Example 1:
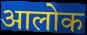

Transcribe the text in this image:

आलोक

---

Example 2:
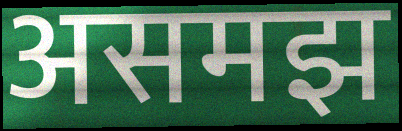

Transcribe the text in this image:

असमझ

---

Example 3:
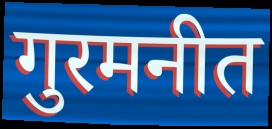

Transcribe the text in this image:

गुरमनीत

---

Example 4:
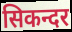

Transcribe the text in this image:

सिकन्दर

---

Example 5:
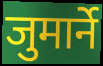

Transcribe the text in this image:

जुमार्ने